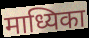
माध्यिका